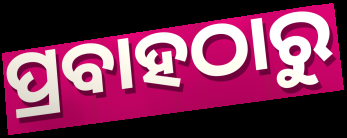
ପ୍ରବାହଠାରୁ